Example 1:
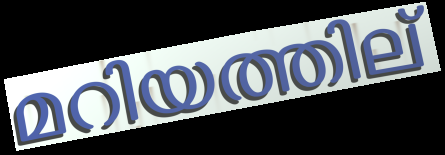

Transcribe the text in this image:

മറിയത്തില്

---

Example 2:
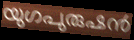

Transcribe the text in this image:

യുഗപുരുഷൻ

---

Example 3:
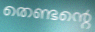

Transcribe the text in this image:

തെണ്ടന്റെ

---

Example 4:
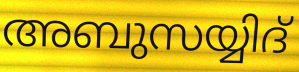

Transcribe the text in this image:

അബുസയ്യിദ്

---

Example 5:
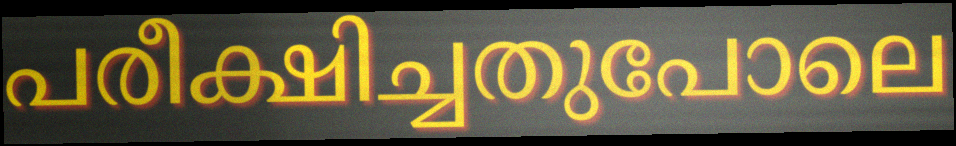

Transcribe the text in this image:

പരീക്ഷിച്ചതുപോലെ